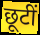
छूटीं